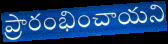
ప్రారంభించాయని